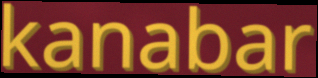
kanabar